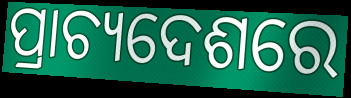
ପ୍ରାଚ୍ୟଦେଶରେ